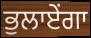
ਭੁਲਾਏਂਗਾ